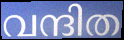
വന്ദിത